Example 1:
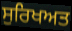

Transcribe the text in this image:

ਸੁਰਿਖਅਤ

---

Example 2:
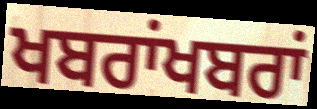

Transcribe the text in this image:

ਖਬਰਾਂਖਬਰਾਂ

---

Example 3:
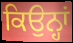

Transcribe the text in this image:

ਕਿਉਨ੍ਹਾਂ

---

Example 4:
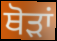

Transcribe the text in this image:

ਥੋੜਾਂ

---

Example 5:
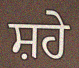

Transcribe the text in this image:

ਸ਼ਹੇ